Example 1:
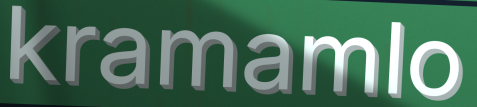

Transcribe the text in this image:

kramamlo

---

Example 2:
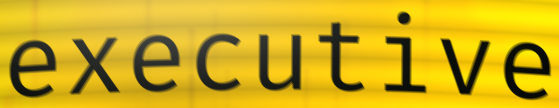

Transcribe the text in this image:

executive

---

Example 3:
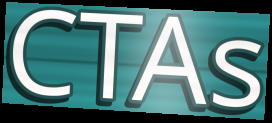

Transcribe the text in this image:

CTAs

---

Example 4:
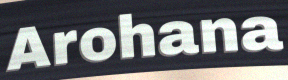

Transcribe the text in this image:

Arohana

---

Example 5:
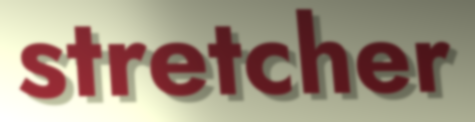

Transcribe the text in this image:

stretcher